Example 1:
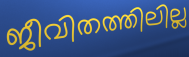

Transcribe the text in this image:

ജീവിതത്തിലില്ല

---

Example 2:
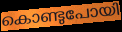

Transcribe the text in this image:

കൊണ്ടുപോയി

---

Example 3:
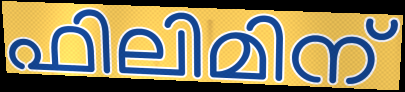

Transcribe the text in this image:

ഫിലിമിന്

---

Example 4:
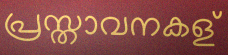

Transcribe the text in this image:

പ്രസ്താവനകള്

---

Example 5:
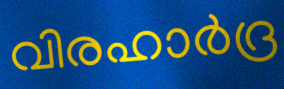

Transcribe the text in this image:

വിരഹാർദ്ര